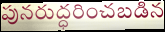
పునరుద్ధరించబడిన